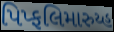
પિપ્ફલિમારુય્હ